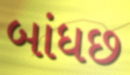
બાંધછ